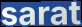
sarat